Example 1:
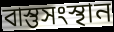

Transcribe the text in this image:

বাস্তুসংস্থান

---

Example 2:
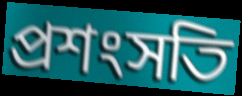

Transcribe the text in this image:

প্রশংসতি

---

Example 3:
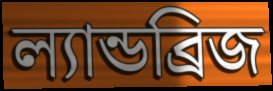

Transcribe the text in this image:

ল্যান্ডব্রিজ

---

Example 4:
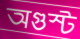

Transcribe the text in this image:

অগুস্ট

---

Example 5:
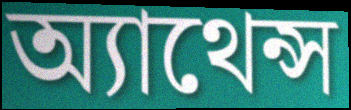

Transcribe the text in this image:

অ্যাথেন্স